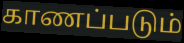
காணப்படும்